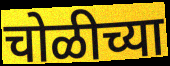
चोळीच्या